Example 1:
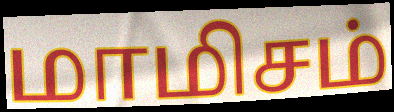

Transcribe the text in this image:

மாமிசம்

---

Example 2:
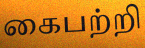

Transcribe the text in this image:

கைபற்றி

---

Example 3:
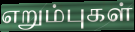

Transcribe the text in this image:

எறும்புகள்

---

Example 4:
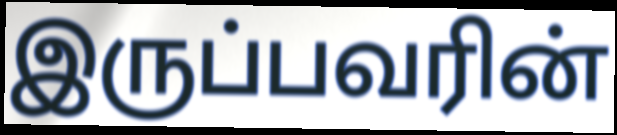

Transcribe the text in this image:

இருப்பவரின்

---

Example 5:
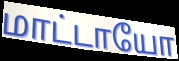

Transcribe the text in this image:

மாட்டாயோ